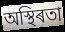
অস্থিৰতা